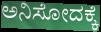
ಅನಿಸೋದಕ್ಕೆ